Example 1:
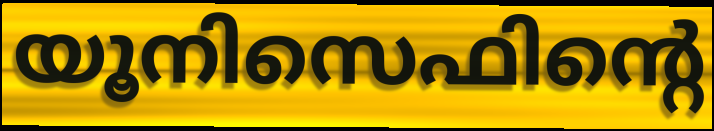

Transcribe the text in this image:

യൂനിസെഫിന്റെ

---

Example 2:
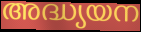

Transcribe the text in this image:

അദ്ധ്യയന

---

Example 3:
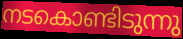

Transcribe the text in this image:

നടകൊണ്ടിടുന്നു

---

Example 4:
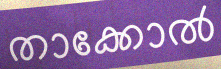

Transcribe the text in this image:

താക്കോൽ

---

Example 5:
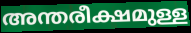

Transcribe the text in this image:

അന്തരീക്ഷമുള്ള